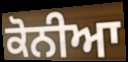
ਕੋਨੀਆ